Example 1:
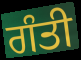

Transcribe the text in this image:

ਗੰਤੀ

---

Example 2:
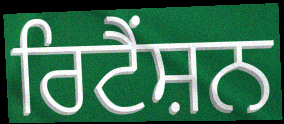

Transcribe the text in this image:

ਰਿਟੈਂਸ਼ਨ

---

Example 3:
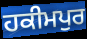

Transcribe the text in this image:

ਹਕੀਮਪੁਰ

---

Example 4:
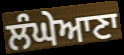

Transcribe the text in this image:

ਲੰਘੇਆਣਾ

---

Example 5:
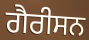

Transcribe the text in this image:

ਗੈਰੀਸਨ